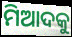
ମିଆଦକୁ